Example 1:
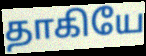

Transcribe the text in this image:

தாகியே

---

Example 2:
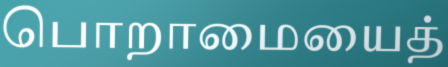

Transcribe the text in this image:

பொறாமையைத்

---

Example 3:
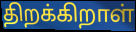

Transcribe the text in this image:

திறக்கிறாள்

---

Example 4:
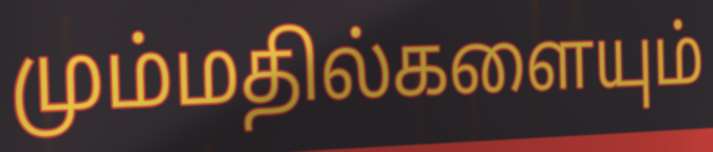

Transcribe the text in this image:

மும்மதில்களையும்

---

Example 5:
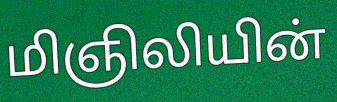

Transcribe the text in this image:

மிஞிலியின்